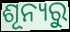
ଶୂନ୍ୟରୁ